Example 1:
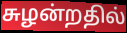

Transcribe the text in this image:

சுழன்றதில்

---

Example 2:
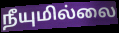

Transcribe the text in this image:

நீயுமில்லை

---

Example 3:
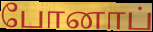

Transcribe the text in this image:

போனாப்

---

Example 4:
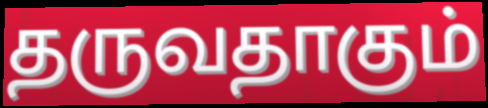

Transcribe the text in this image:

தருவதாகும்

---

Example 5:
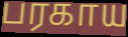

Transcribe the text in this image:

பரகாய